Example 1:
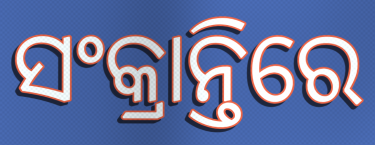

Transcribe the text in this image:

ସଂକ୍ରାନ୍ତିରେ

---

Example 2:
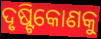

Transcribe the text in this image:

ଦୃଷ୍ଟିକୋଣକୁ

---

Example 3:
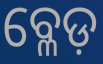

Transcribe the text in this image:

ବ୍ଳେଡ଼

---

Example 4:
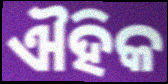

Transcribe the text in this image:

ଐହିକ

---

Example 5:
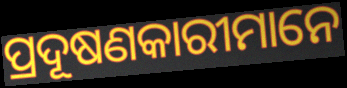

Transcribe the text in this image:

ପ୍ରଦୂଷଣକାରୀମାନେ